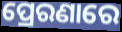
ପ୍ରେରଣାରେ